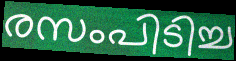
രസംപിടിച്ച